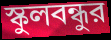
স্কুলবন্ধুর